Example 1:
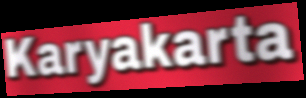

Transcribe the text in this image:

Karyakarta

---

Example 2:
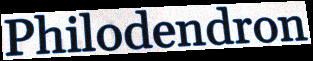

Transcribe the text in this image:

Philodendron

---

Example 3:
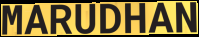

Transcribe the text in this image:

MARUDHAN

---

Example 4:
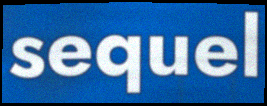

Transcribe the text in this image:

sequel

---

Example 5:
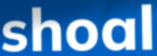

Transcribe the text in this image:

shoal